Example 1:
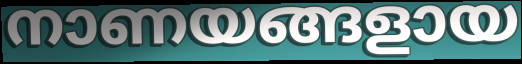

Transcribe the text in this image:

നാണയങ്ങളായ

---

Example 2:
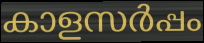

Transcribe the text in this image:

കാളസർപ്പം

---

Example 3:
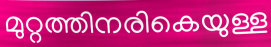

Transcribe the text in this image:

മുറ്റത്തിനരികെയുള്ള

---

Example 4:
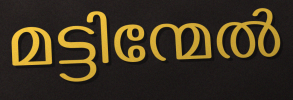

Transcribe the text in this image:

മട്ടിന്മേൽ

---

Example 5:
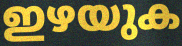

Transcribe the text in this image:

ഇഴയുക